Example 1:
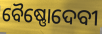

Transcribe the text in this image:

ବୈଷ୍ଣୋଦେବୀ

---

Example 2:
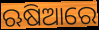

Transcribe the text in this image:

ଋଷିଆରେ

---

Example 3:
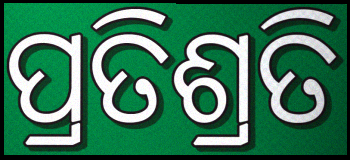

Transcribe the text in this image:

ପ୍ରତିଶ୍ରତି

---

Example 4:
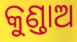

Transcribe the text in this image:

କୁଣ୍ଡାଅ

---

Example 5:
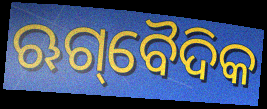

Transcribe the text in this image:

ଋଗ୍‌ବୈଦିକ